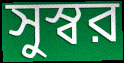
সুস্বর